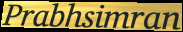
Prabhsimran